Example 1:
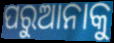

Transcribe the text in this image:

ପରୁଆନାକୁ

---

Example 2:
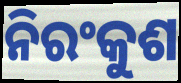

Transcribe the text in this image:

ନିରଂକୁଶ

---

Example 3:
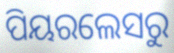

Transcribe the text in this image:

ପିୟରଲେସରୁ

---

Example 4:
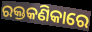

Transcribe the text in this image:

ରକ୍ତକଣିକାରେ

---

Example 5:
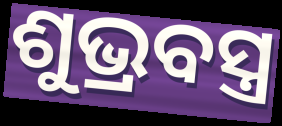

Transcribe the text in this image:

ଶୁଭ୍ରବସ୍ତ୍ର